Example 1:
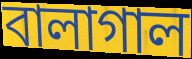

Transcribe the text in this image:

বালাগাল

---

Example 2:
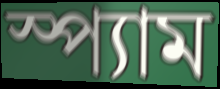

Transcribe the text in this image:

স্প্যাম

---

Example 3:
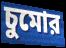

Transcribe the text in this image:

চুমোর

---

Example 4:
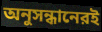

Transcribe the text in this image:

অনুসন্ধানেরই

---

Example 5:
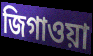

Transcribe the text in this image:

জিগাওয়া